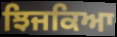
ਝਿਜਕਿਆ